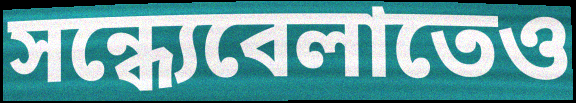
সন্ধ্যেবেলাতেও